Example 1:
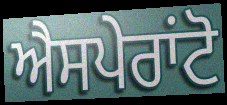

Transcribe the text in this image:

ਐਸਪੇਰਾਂਟੋ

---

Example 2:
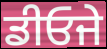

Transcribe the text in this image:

ਡੀਓਜੇ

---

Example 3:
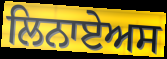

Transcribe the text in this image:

ਲਿਨਾਏਅਸ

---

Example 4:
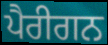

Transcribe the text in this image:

ਪੈਰੀਗਨ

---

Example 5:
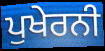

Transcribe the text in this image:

ਪੁਖੇਰਨੀ